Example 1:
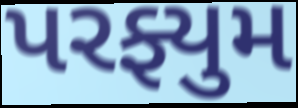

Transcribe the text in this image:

પરફ્યુમ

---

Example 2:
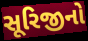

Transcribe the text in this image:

સૂરિજીનો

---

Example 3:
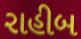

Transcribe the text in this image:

રાહીબ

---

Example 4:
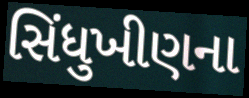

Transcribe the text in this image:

સિંધુખીણના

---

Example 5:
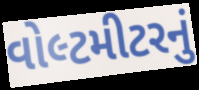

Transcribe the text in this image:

વોલ્ટમીટરનું